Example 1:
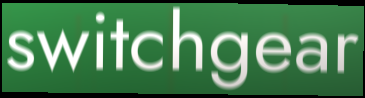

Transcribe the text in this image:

switchgear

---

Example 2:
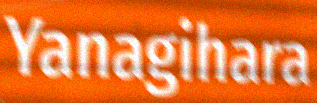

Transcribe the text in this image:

Yanagihara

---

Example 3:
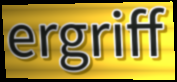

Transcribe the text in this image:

ergriff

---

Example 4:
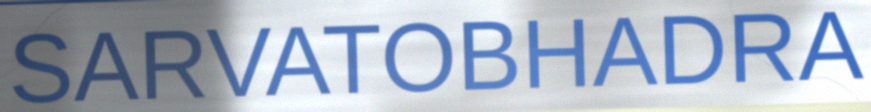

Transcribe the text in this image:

SARVATOBHADRA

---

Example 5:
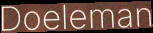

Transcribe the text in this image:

Doeleman